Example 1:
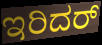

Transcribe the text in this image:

ಇರಿದರ್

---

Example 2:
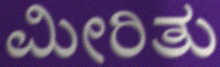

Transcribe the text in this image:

ಮೀರಿತು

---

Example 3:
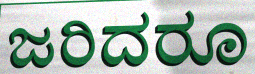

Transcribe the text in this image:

ಜರಿದರೂ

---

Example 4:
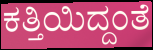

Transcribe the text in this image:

ಕತ್ತಿಯಿದ್ದಂತೆ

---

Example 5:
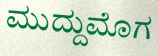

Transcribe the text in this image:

ಮುದ್ದುಮೊಗ